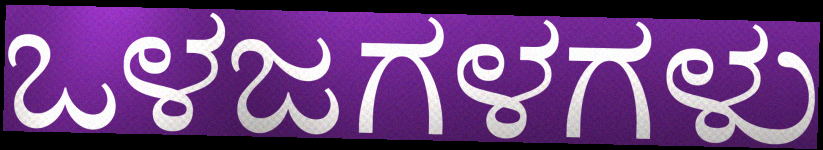
ಒಳಜಗಳಗಳು